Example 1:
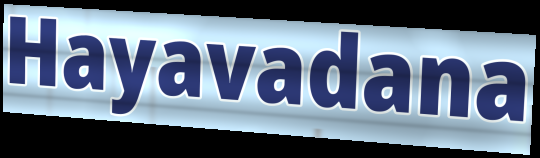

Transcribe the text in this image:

Hayavadana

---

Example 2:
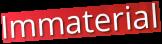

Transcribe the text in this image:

Immaterial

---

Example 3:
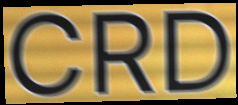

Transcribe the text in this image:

CRD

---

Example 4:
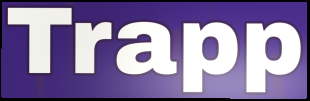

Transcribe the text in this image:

Trapp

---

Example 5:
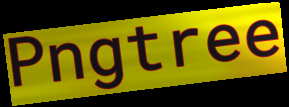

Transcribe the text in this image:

Pngtree